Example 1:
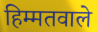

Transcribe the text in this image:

हिम्मतवाले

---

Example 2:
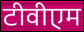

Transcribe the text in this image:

टीवीएम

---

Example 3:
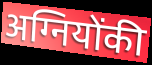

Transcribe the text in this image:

अग्नियोंकी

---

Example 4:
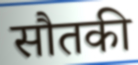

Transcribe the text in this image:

सौतकी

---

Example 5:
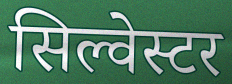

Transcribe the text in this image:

सिल्वेस्टर